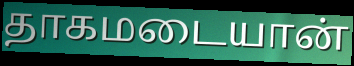
தாகமடையான்